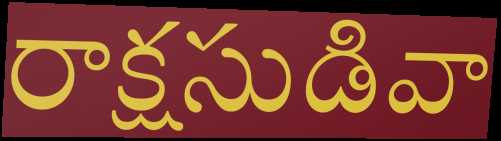
రాక్షసుడివా